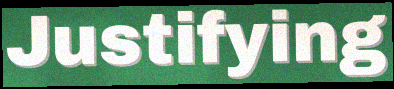
Justifying